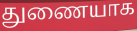
துணையாக